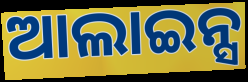
ଆଲାଇନ୍ସ